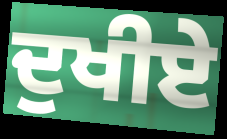
ਦੁਖੀਏ